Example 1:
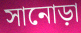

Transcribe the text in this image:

সানোড়া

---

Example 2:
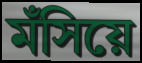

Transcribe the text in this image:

মঁসিয়ে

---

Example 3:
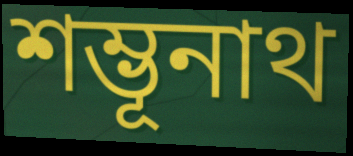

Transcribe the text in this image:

শম্ভূনাথ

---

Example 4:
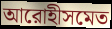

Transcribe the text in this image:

আরোহীসমেত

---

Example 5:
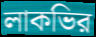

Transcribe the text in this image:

লাকভির